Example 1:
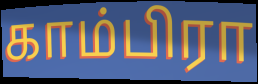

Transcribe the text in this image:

காம்பிரா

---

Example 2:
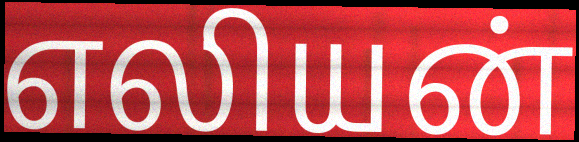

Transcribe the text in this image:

எலியன்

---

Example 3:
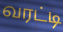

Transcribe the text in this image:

வரட்டி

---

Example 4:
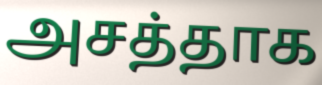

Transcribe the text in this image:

அசத்தாக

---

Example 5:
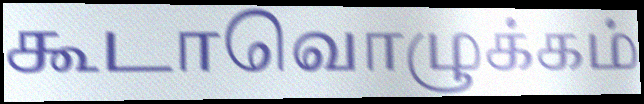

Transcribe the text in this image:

கூடாவொழுக்கம்